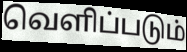
வெளிப்படும்